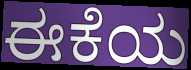
ಈಕೆಯ